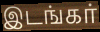
இடங்கர்